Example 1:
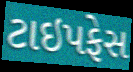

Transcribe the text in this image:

ટાઇપફેસ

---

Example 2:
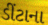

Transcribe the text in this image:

ડીંટાના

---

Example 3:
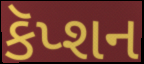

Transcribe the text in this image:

કૅપ્શન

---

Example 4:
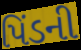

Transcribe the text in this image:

પિંડની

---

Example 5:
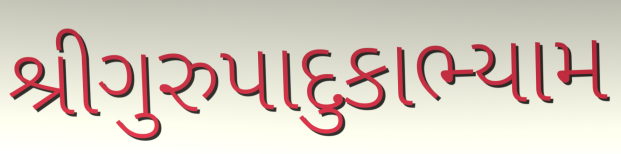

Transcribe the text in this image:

શ્રીગુરુપાદુકાભ્યામ